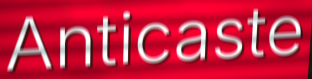
Anticaste